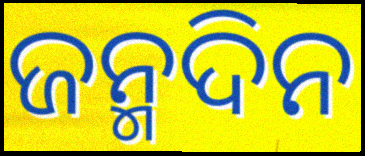
ଜନ୍ମଦିନ